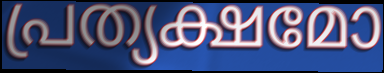
പ്രത്യക്ഷമോ